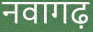
नवागढ़